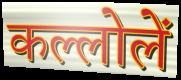
कल्लोलें